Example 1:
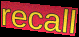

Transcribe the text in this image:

recall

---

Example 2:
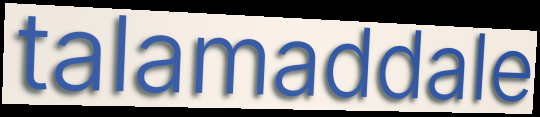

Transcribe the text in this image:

talamaddale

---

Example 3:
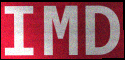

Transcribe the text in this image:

IMD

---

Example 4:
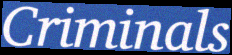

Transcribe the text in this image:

Criminals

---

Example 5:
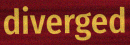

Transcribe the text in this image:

diverged